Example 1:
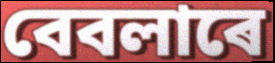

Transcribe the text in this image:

বেবলাৰে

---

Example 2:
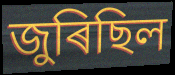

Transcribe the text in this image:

জুৰিছিল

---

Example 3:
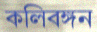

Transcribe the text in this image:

কলিবঙ্গন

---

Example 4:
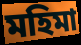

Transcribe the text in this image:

মহিমা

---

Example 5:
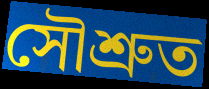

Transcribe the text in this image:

সৌশ্ৰুত